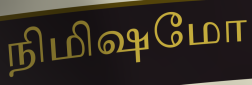
நிமிஷமோ